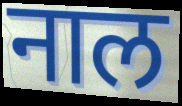
नाल